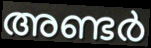
അണ്ടർ